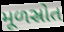
મૂળસ્રોત